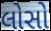
લોસો